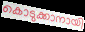
കൊടുക്കാനായി